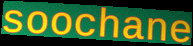
soochane